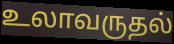
உலாவருதல்